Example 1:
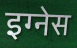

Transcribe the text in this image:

इग्नेस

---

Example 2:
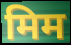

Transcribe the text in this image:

मिम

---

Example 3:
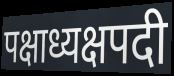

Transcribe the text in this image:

पक्षाध्यक्षपदी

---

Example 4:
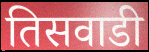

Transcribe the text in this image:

तिसवाडी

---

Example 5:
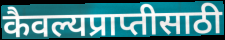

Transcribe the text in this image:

कैवल्यप्राप्तीसाठी